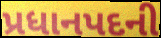
પ્રધાનપદની